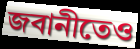
জবানীতেও